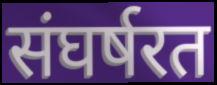
संघर्षरत